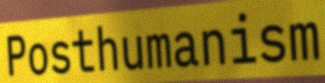
Posthumanism